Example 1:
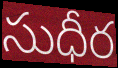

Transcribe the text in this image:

సుధీర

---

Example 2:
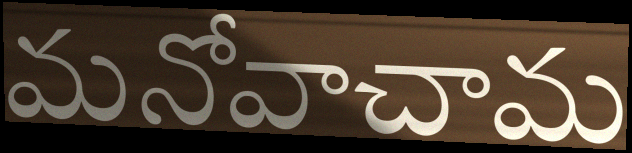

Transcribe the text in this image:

మనోవాచామ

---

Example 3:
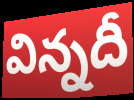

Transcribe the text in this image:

విన్నదీ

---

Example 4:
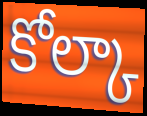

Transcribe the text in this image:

కోల్కా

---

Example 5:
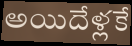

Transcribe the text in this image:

అయిదేళ్లకే